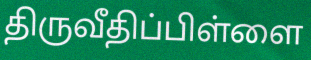
திருவீதிப்பிள்ளை